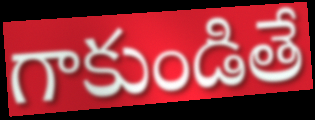
గాకుండితే